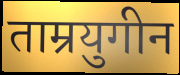
ताम्रयुगीन